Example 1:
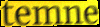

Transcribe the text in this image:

temne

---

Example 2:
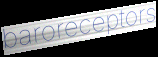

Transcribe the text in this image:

baroreceptors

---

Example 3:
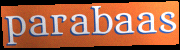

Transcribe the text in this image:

parabaas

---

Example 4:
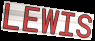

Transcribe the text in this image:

LEWIS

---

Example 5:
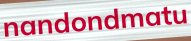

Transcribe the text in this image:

nandondmatu